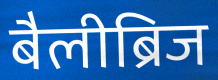
बैलीब्रिज